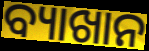
ବ୍ୟାଖାନ